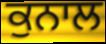
ਕੁਨਾਲ